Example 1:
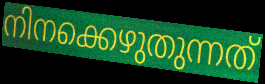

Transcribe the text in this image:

നിനക്കെഴുതുന്നത്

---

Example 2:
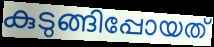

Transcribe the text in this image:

കുടുങ്ങിപ്പോയത്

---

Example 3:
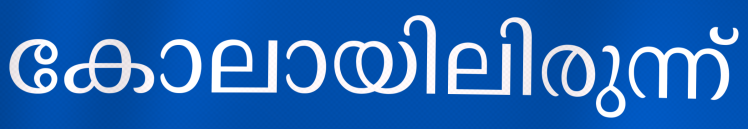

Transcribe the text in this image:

കോലായിലിരുന്ന്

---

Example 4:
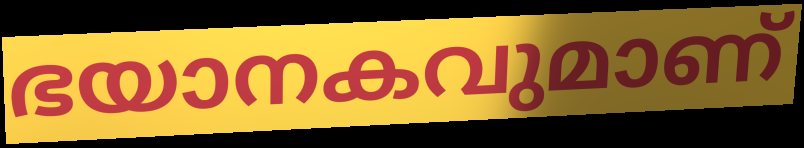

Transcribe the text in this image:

ഭയാനകവുമാണ്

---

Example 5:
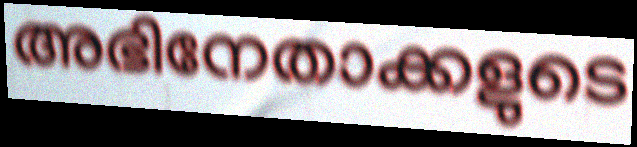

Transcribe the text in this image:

അഭിനേതാക്കളുടെ